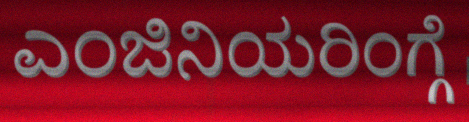
ಎಂಜಿನಿಯರಿಂಗ್ಗೆ